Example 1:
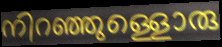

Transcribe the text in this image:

നിറഞ്ഞുള്ളൊരു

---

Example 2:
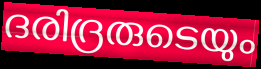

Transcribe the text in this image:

ദരിദ്രരുടെയും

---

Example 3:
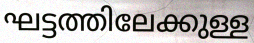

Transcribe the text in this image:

ഘട്ടത്തിലേക്കുള്ള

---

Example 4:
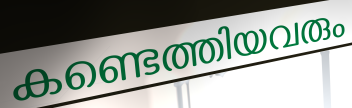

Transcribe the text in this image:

കണ്ടെത്തിയവരും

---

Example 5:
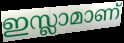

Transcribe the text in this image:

ഇസ്ലാമാണ്